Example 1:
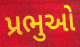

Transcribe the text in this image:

પ્રભુઓ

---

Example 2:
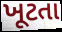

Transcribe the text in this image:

ખૂટતા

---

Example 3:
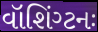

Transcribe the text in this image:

વૉશિંગ્ટનઃ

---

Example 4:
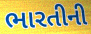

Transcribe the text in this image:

ભારતીની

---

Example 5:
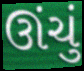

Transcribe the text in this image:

ઊંચું